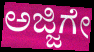
ಅಜ್ಜಿಗೇ